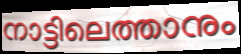
നാട്ടിലെത്താനും